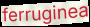
ferruginea